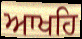
ਆਖਹਿ